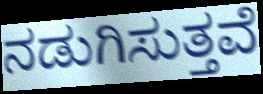
ನಡುಗಿಸುತ್ತವೆ